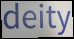
deity